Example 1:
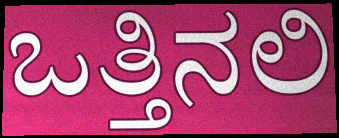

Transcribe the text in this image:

ಒತ್ತಿನಲಿ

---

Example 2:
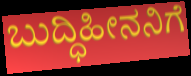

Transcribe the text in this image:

ಬುದ್ಧಿಹೀನನಿಗೆ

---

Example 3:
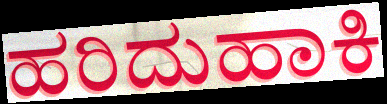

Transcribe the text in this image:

ಹರಿದುಹಾಕಿ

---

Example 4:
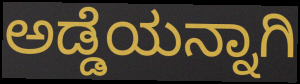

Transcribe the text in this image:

ಅಡ್ಡೆಯನ್ನಾಗಿ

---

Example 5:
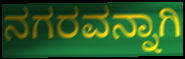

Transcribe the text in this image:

ನಗರವನ್ನಾಗಿ